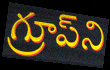
గ్రూప్‌ని